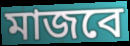
মাজবে